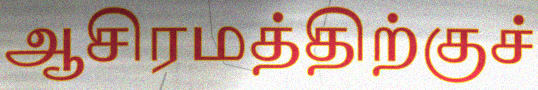
ஆசிரமத்திற்குச்